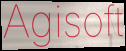
Agisoft